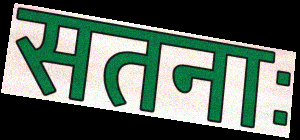
सतनाः